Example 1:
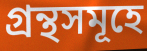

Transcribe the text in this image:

গ্ৰন্থসমূহে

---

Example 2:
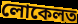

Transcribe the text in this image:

লোকেলত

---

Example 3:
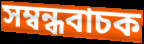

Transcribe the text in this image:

সম্বন্ধবাচক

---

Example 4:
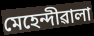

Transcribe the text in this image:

মেহেন্দীৱালা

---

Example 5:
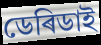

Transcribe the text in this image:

ডেৰিডাই